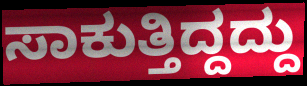
ಸಾಕುತ್ತಿದ್ದದ್ದು